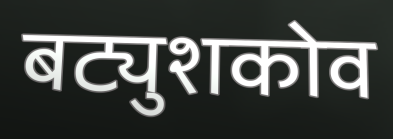
बट्युशकोव